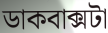
ডাকবাক্সটা